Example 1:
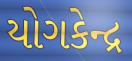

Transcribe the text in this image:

યોગકેન્દ્ર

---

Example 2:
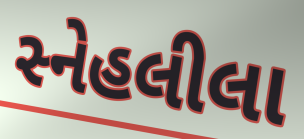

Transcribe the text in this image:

સ્નેહલીલા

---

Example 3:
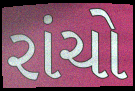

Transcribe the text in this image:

રાંચો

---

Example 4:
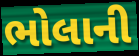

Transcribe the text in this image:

ભોલાની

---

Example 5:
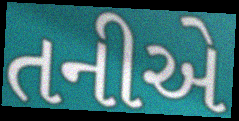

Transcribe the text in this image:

તનીએ